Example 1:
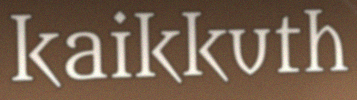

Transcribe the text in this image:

kaikkuth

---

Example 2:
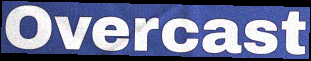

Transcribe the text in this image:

Overcast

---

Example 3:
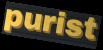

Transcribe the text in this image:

purist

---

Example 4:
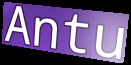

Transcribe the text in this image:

Antu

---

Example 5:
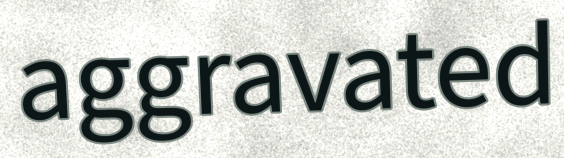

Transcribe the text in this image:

aggravated